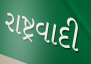
રાષ્ટ્રવાદી